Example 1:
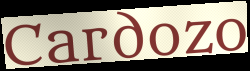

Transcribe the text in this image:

Cardozo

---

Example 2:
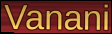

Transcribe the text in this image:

Vanani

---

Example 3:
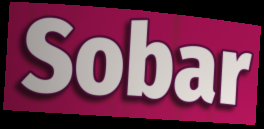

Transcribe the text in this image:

Sobar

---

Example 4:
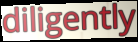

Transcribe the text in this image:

diligently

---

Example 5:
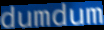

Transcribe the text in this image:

dumdum